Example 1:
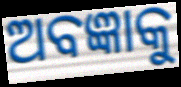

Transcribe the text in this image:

ଅବଜ୍ଞାକୁ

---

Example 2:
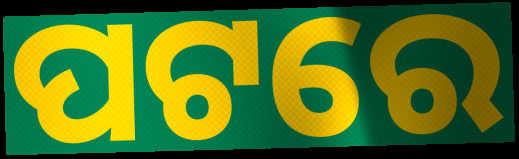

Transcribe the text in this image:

ପଟରେ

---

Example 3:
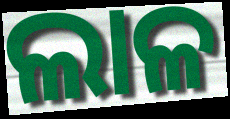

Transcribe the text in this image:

ଲାଳ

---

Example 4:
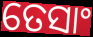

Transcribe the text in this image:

ତେସାଂ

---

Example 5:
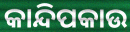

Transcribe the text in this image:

କାନ୍ଦିପକାଉ